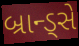
બ્રાન્ડ્સે